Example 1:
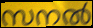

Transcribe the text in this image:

സനൽ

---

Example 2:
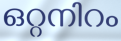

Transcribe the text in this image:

ഒറ്റനിറം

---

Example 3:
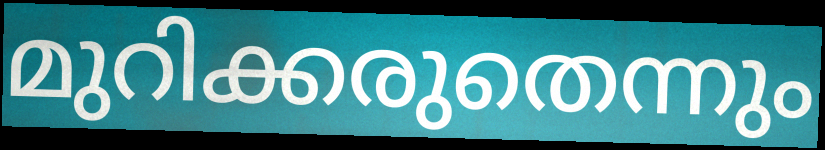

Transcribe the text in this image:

മുറിക്കരുതെന്നും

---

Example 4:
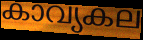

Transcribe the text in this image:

കാവ്യകല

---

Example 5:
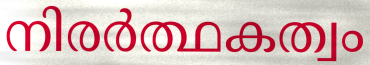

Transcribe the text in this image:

നിരർത്ഥകത്വം